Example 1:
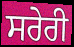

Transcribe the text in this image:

ਸਰੇਰੀ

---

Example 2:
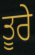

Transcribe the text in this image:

ਤੂਰੇ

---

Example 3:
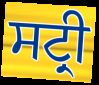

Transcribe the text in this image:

ਸਟ੍ਰੀ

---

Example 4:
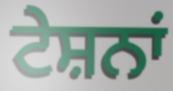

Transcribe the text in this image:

ਟੇਸ਼ਨਾਂ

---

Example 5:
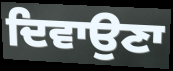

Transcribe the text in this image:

ਦਿਵਾਉਣਾ